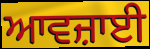
ਆਵਜ਼ਾਈ